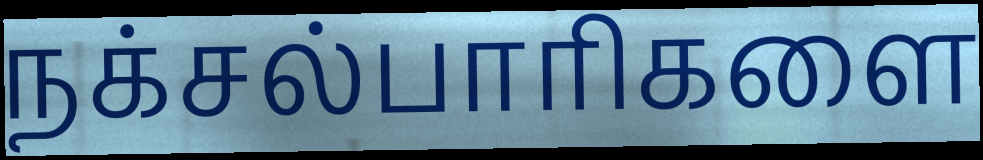
நக்சல்பாரிகளை